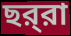
ছর্‌রা